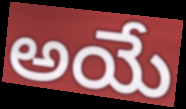
అయే